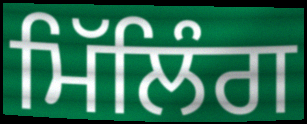
ਮਿੱਲਿੰਗ